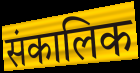
संकालिक